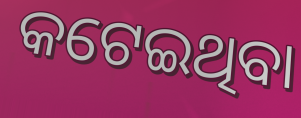
କଟେଇଥିବା